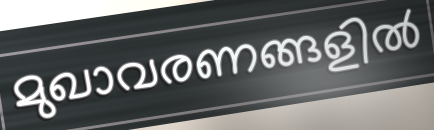
മുഖാവരണങ്ങളിൽ